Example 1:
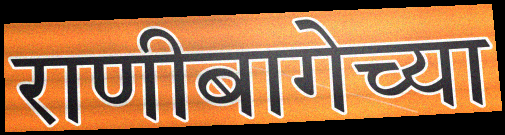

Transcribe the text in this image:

राणीबागेच्या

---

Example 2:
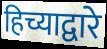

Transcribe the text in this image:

हिच्याद्वारे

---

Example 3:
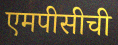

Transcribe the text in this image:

एमपीसीची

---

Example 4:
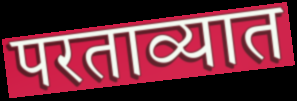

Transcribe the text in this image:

परताव्यात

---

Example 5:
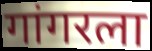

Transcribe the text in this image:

गांगरला